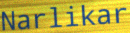
Narlikar